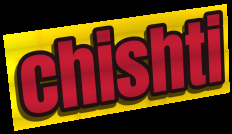
chishti